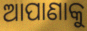
ଆପାଣାକୁ